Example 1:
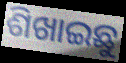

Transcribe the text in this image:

ଶିଖାଇଛୁ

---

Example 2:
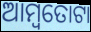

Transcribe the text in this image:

ଆମ୍ବତୋଟା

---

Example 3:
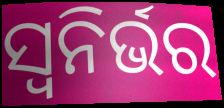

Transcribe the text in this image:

ସ୍ୱନିର୍ଭର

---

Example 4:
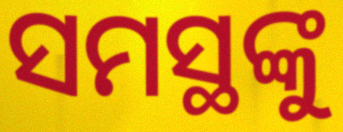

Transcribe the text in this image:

ସମସ୍ଥଙ୍କୁ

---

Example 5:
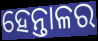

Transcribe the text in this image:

ହେନ୍ତାଳର